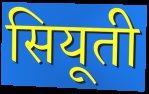
सियूती